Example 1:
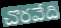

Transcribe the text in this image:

చొరవేది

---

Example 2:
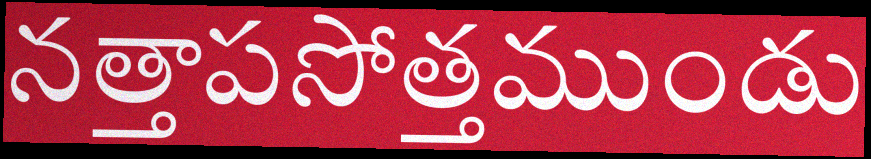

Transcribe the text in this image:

నత్తాపసోత్తముండు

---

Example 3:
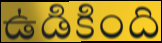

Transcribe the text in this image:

ఉడికింది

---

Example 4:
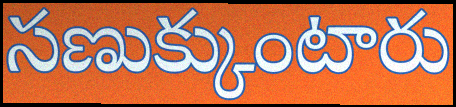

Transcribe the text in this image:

సణుక్కుంటారు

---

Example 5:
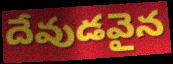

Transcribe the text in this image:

దేవుడవైన